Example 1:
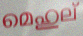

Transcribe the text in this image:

മെഹുല്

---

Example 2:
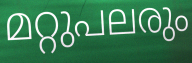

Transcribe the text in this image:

മറ്റുപലരും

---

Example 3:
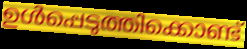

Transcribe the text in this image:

ഉൾപ്പെടുത്തിക്കൊണ്ട്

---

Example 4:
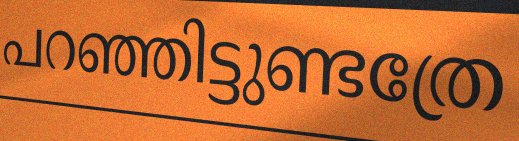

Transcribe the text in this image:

പറഞ്ഞിട്ടുണ്ടത്രേ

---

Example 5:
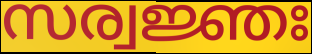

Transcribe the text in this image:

സര്വജ്ഞഃ